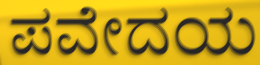
ಪವೇದಯ